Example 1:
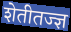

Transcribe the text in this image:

शेतीतज्ज्ञ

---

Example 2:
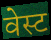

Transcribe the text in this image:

वेस्ट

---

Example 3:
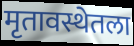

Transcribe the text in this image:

मृतावस्थेतला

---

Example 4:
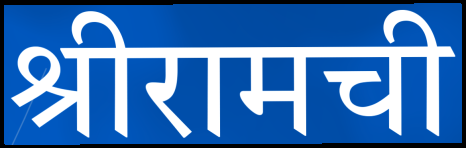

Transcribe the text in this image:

श्रीरामची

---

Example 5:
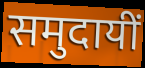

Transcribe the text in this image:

समुदायीं